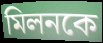
মিলনকে